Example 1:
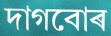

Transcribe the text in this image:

দাগবোৰ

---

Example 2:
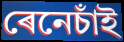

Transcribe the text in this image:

ৰেনেচাঁই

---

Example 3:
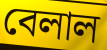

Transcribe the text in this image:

বেলাল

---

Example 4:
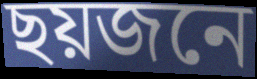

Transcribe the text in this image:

ছয়জনে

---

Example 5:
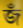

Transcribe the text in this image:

জঁ